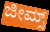
ಜೀಮ್ಸ್